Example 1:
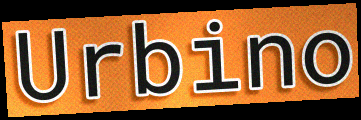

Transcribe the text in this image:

Urbino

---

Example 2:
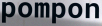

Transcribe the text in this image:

pompon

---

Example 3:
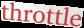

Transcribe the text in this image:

throttle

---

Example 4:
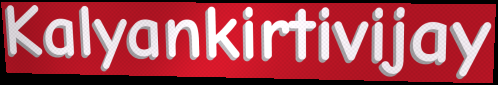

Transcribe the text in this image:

Kalyankirtivijay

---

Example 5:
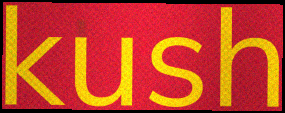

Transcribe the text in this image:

kush